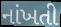
નાંખતી